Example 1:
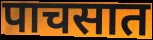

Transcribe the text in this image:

पाचसात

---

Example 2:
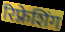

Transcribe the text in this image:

रिफ्रेशिंग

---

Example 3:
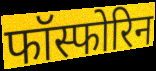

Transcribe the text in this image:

फॉस्फोरिन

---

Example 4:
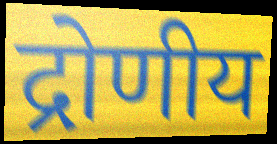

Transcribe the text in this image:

द्रोणीय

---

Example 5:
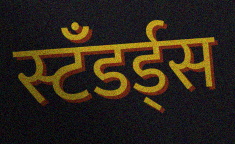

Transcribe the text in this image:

स्टँडर्ड्स